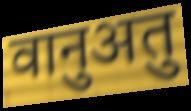
वानुअतु